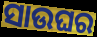
ସାଉଘର